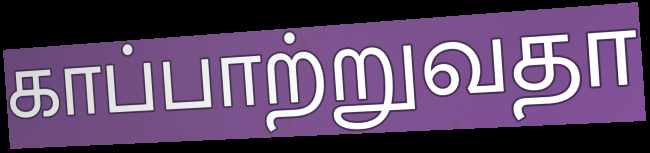
காப்பாற்றுவதா